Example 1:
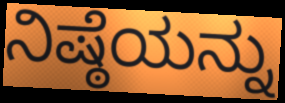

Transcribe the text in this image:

ನಿಷ್ಠೆಯನ್ನು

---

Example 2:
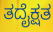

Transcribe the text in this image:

ತದೈಕ್ಷತ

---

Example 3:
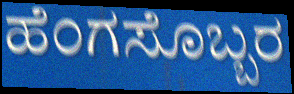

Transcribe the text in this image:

ಹೆಂಗಸೊಬ್ಬರ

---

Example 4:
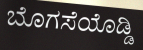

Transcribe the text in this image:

ಬೊಗಸೆಯೊಡ್ಡಿ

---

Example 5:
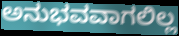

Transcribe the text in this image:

ಅನುಭವವಾಗಲಿಲ್ಲ